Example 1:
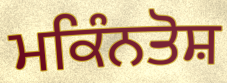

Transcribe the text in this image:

ਮਕਿੰਨਤੋਸ਼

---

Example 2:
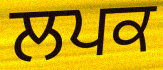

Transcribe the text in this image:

ਲਪਕ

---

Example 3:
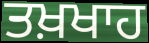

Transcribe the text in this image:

ਤਖ਼ਖਾਹ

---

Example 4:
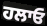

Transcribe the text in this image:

ਹਲਾਓ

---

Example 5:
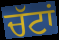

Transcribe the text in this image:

ਚੱਟਾਂ